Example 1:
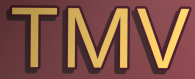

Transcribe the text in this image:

TMV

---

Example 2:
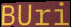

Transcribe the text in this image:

BUri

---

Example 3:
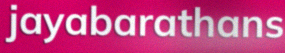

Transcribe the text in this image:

jayabarathans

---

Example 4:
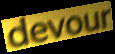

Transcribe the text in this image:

devour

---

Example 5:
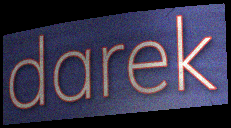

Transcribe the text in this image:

darek